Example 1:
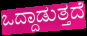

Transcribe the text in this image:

ಒದ್ದಾಡುತ್ತದೆ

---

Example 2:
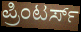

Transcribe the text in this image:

ಪ್ರಿಂಟರ್ಸ್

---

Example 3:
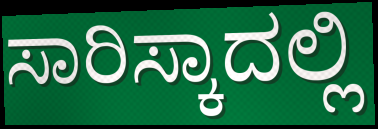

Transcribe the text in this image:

ಸಾರಿಸ್ಕಾದಲ್ಲಿ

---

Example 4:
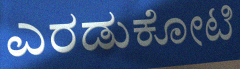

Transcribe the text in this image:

ಎರಡುಕೋಟಿ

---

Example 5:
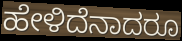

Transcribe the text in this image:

ಹೇಳಿದೆನಾದರೂ